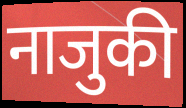
नाजुकी